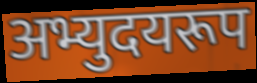
अभ्युदयरूप